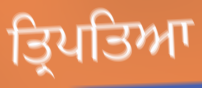
ਤ੍ਰਿਪਤਿਆ